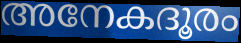
അനേകദൂരം